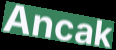
Ancak